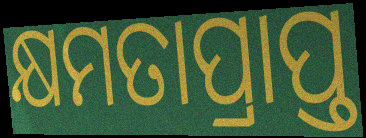
କ୍ଷମତାପ୍ରାପ୍ତ